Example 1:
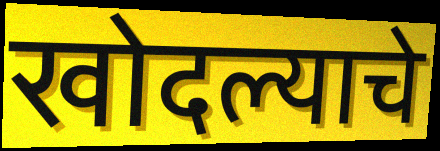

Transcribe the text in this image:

खोदल्याचे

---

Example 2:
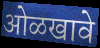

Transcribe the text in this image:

ओळखावे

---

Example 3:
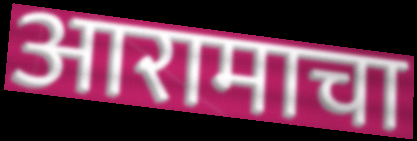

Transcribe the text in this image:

आरामाचा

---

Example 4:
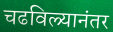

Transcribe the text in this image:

चढविल्यानंतर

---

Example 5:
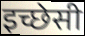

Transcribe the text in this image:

इच्छेसी